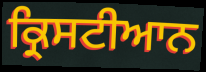
ਕ੍ਰਿਸਟੀਆਨ